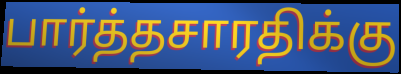
பார்த்தசாரதிக்கு